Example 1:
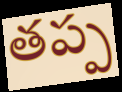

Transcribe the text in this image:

తప్ప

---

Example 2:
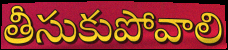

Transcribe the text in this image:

తీసుకుపోవాలి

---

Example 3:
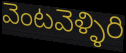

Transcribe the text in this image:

వెంటవెళ్ళిరి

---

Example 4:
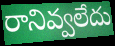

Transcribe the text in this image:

రానివ్వలేదు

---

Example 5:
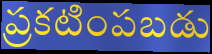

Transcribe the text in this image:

ప్రకటింపబడు